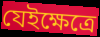
যেইক্ষেত্রে